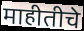
माहीतीचे